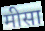
मीसा